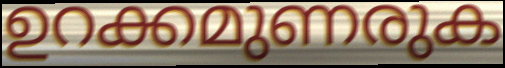
ഉറക്കമുണരുക